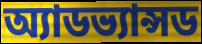
অ্যাডভ্যান্সড